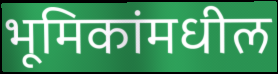
भूमिकांमधील